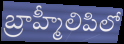
బ్రాహ్మీలిపిలో